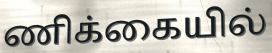
ணிக்கையில்